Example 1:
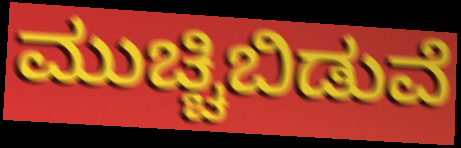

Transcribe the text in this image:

ಮುಚ್ಚಿಬಿಡುವೆ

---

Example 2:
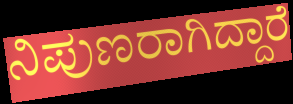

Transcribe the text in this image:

ನಿಪುಣರಾಗಿದ್ದಾರೆ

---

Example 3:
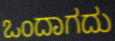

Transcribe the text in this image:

ಒಂದಾಗದು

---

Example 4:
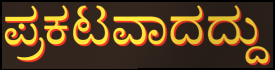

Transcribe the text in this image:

ಪ್ರಕಟವಾದದ್ದು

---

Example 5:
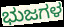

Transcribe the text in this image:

ಭುಜಗಳ